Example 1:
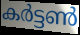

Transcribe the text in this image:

കർട്ടൺ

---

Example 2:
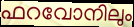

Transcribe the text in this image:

ഫറവോനിലും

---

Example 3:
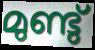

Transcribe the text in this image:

മുണ്ടു്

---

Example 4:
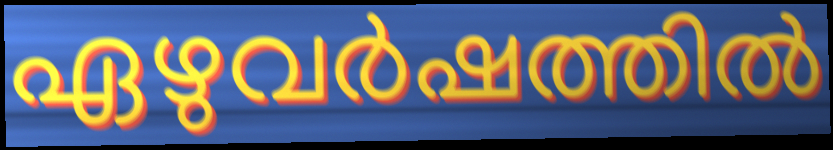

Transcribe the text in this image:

ഏഴുവർഷത്തിൽ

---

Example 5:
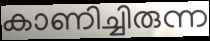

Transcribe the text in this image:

കാണിച്ചിരുന്ന